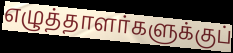
எழுத்தாளர்களுக்குப்